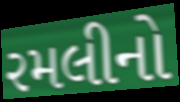
રમલીનો